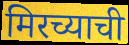
मिरच्याची